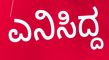
ಎನಿಸಿದ್ದ